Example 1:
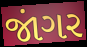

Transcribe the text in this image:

જાંગર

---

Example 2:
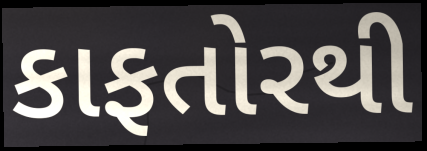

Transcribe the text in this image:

કાફતોરથી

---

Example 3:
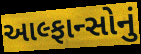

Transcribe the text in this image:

આલ્ફાન્સોનું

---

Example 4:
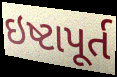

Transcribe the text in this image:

ઇષ્ટાપૂર્ત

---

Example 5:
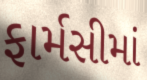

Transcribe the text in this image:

ફાર્મસીમાં